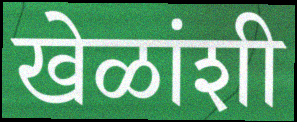
खेळांशी